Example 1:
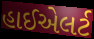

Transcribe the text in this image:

હાઈએલર્ટ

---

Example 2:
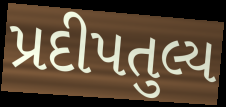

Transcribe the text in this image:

પ્રદીપતુલ્ય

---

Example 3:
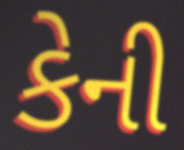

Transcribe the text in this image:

કેની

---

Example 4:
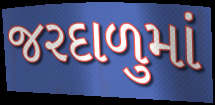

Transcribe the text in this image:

જરદાળુમાં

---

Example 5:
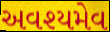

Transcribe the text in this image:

અવશ્યમેવ